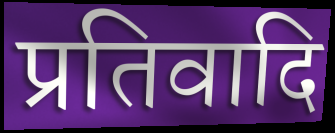
प्रतिवादि